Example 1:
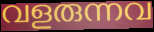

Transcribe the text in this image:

വളരുന്നവ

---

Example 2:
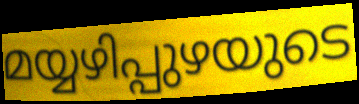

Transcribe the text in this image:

മയ്യഴിപ്പുഴയുടെ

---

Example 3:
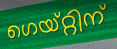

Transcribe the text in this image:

ഗെയ്റ്റിന്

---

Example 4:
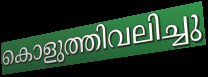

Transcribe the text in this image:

കൊളുത്തിവലിച്ചു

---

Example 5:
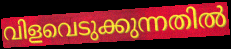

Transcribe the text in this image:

വിളവെടുക്കുന്നതിൽ